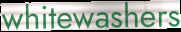
whitewashers